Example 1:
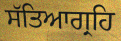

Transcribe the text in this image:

ਸੱਤਿਆਗ੍ਰਹਿ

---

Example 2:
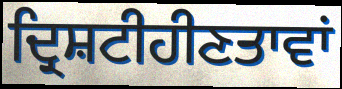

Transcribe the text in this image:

ਦ੍ਰਿਸ਼ਟੀਹੀਣਤਾਵਾਂ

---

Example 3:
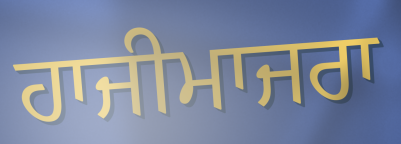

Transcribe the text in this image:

ਹਾਜੀਮਾਜਰਾ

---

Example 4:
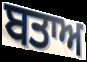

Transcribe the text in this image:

ਬਤਾਅ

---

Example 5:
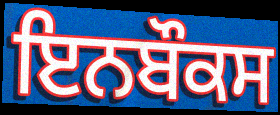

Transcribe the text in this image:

ਇਨਬੌਕਸ